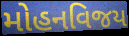
મોહનવિજય